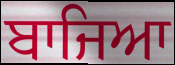
ਬਾਜਿਆ